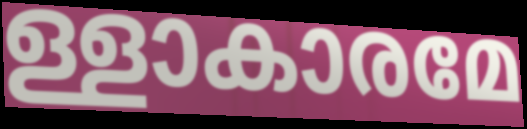
ള്ളാകാരമേ